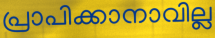
പ്രാപിക്കാനാവില്ല